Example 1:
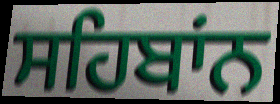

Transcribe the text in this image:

ਸਹਿਬਾਂਨ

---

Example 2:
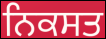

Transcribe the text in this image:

ਨਿਕਸਤ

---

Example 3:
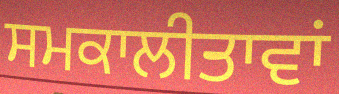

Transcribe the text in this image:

ਸਮਕਾਲੀਤਾਵਾਂ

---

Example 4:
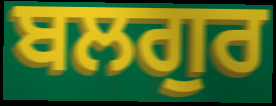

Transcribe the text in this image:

ਬਲਗੁਰ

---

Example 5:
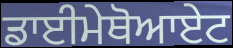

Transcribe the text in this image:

ਡਾਈਮੇਥੋਆਏਟ